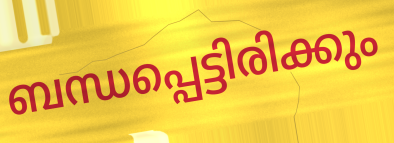
ബന്ധപ്പെട്ടിരിക്കും